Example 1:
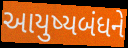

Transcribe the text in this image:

આયુષ્યબંધને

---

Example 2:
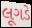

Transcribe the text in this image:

લૂગડે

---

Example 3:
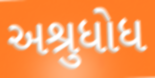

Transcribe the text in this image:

અશ્રુધોધ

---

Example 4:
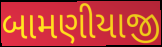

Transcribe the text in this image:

બામણીયાજી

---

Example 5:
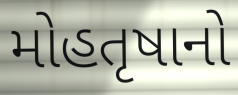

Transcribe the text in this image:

મોહતૃષાનો